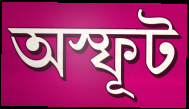
অস্ফূট